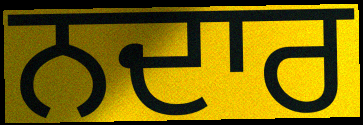
ਨਦਾਰ